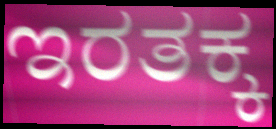
ಇರತಕ್ಕ